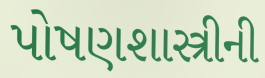
પોષણશાસ્ત્રીની